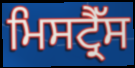
ਮਿਸਟ੍ਰੈੱਸ